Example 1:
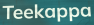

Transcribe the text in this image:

Teekappa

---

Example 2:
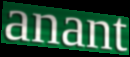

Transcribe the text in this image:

anant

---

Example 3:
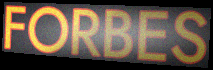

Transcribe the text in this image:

FORBES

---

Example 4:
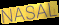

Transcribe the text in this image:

NASAL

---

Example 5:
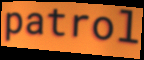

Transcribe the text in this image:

patrol